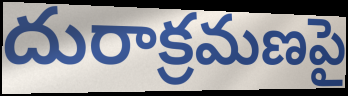
దురాక్రమణపై